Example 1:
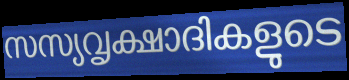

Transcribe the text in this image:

സസ്യവൃക്ഷാദികളുടെ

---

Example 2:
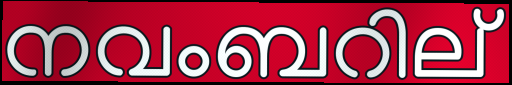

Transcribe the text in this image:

നവംബറില്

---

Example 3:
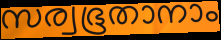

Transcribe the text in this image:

സര്വഭൂതാനാം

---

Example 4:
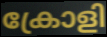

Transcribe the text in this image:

ക്രോളി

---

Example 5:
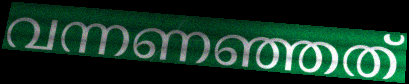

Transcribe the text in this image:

വന്നണഞ്ഞത്